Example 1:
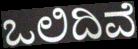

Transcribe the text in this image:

ಒಲಿದಿವೆ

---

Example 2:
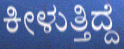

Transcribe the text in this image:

ಕೀಳುತ್ತಿದ್ದೆ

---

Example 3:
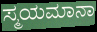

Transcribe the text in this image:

ಸ್ಮಯಮಾನಾ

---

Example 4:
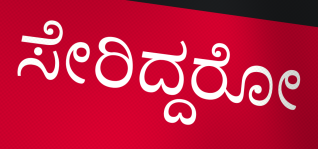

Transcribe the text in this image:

ಸೇರಿದ್ದರೋ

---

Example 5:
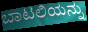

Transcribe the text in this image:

ಬಾಟಲಿಯನ್ನು